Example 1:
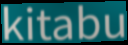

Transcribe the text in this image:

kitabu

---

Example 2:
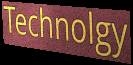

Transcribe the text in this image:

Technolgy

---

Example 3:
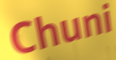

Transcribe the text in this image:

Chuni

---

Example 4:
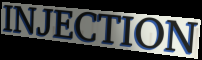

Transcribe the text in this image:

INJECTION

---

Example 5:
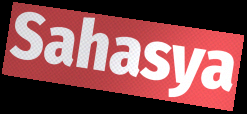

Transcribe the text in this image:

Sahasya